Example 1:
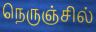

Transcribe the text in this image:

நெருஞ்சில்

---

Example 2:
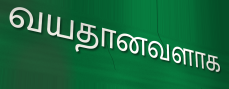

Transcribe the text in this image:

வயதானவளாக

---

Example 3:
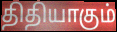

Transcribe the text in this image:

திதியாகும்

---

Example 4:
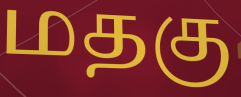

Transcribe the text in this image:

மதகு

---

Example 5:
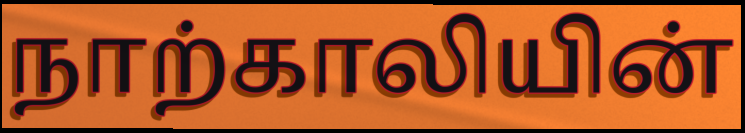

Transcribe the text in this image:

நாற்காலியின்